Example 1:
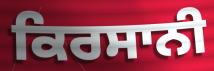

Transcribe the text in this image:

ਕਿਰਸਾਨੀ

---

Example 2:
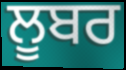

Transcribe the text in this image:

ਲੂਬਰ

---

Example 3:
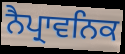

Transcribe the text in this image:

ਨੈਪ੍ਰਾਵਨਿਕ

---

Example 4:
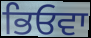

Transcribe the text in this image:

ਭਿਓਵਾ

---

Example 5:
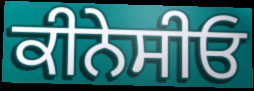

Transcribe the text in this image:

ਕੀਨੇਸੀਓ